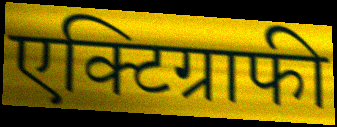
एक्टिग्राफी